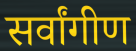
सर्वांगीण